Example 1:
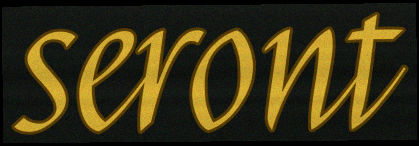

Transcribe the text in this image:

seront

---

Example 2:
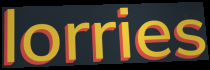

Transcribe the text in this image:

lorries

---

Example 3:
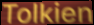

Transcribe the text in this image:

Tolkien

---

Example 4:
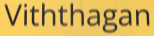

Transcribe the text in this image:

Viththagan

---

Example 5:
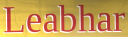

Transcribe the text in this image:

Leabhar